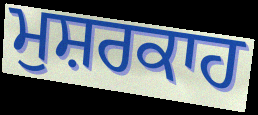
ਮੁਸ਼ਰਕਾਹ